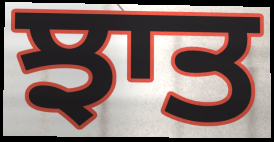
ਝਾਤ